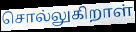
சொல்லுகிறாள்